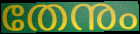
തേനും